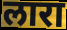
लारा